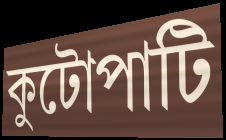
কুটোপাটি